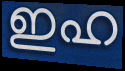
ഇഹ